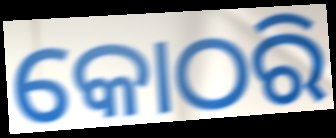
କୋଠରି